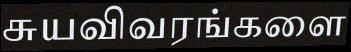
சுயவிவரங்களை